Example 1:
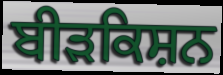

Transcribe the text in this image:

ਬੀੜਕਿਸ਼ਨ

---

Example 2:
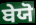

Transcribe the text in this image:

ਬੇਯੋ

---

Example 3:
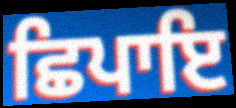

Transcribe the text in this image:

ਛਿਪਾਇ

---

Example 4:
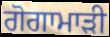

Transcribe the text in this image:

ਗੋਗਾਮਾੜੀ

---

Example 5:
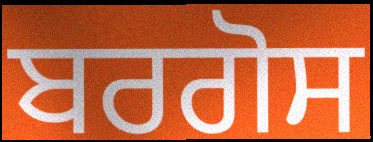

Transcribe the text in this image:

ਬਰਗੋਸ